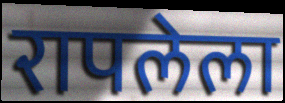
रापलेला